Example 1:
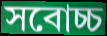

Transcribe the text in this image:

সবোচ্চ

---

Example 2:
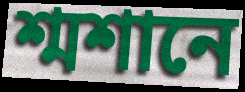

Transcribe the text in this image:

শ্মশানে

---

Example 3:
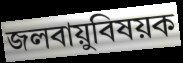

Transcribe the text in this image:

জলবায়ুবিষয়ক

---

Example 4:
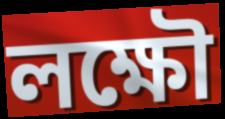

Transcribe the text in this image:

লক্ষৌ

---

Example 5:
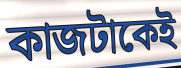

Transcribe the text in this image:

কাজটাকেই